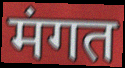
मंगत